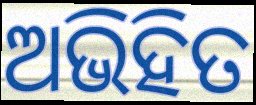
ଅଭିହିତ